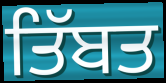
ਤਿੱਬਤ